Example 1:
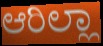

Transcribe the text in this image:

ಆರಿಲ್ಲಾ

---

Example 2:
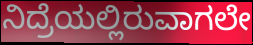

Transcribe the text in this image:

ನಿದ್ರೆಯಲ್ಲಿರುವಾಗಲೇ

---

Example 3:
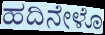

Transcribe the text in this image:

ಹದಿನೇಳೊ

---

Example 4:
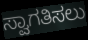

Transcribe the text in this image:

ಸ್ವಾಗತಿಸಲು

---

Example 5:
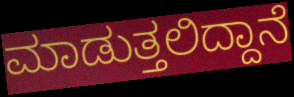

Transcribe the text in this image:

ಮಾಡುತ್ತಲಿದ್ದಾನೆ